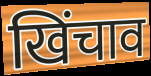
खिंचाव